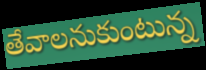
తేవాలనుకుంటున్న